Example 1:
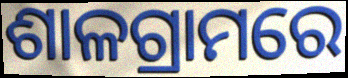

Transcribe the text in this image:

ଶାଳଗ୍ରାମରେ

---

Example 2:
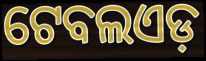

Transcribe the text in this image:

ଟେବଲଏଡ଼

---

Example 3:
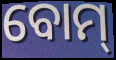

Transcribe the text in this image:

ବୋମ୍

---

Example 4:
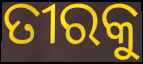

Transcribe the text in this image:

ତୀରକୁ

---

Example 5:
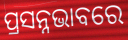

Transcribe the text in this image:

ପ୍ରସନ୍ନଭାବରେ